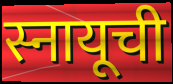
स्नायूची